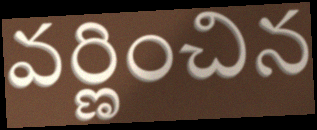
వర్ణించిన